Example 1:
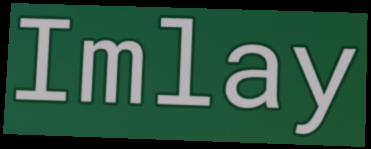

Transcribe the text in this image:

Imlay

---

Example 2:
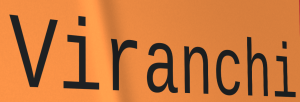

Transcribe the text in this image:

Viranchi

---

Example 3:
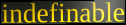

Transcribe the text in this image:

indefinable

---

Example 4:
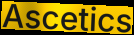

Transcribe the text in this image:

Ascetics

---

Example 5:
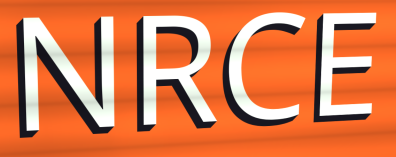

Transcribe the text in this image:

NRCE